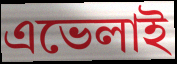
এভেলাই